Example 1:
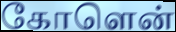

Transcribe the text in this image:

கோளென்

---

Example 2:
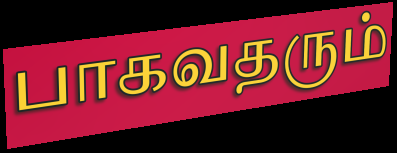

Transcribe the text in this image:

பாகவதரும்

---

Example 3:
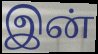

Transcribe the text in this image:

இன்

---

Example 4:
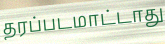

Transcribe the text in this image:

தரப்படமாட்டாது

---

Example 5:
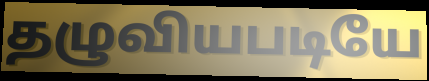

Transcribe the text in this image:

தழுவியபடியே